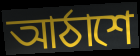
আঠাশে